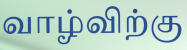
வாழ்விற்கு